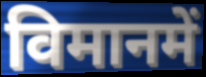
विमानमें